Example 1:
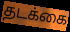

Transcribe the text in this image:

தடக்கை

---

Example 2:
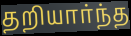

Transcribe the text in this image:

தறியார்ந்த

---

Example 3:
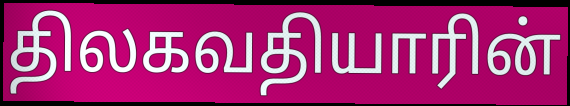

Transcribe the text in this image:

திலகவதியாரின்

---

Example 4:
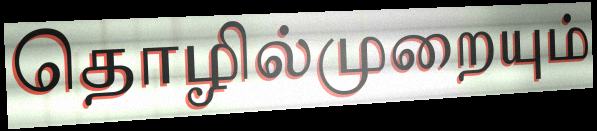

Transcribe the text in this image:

தொழில்முறையும்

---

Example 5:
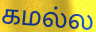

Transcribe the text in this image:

கமல்ல